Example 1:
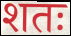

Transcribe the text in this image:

शतः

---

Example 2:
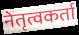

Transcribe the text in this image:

नेतृत्वकर्ता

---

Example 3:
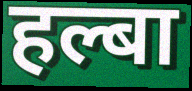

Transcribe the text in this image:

हल्बा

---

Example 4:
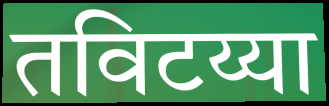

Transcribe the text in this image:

तविटय्या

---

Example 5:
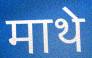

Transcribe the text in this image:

माथे